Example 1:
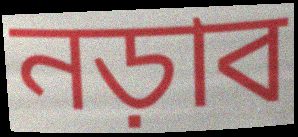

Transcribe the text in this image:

নড়াব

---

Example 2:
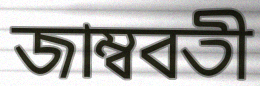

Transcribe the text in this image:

জাম্ববতী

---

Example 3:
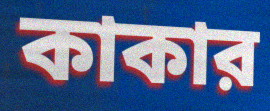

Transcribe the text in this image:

কাকার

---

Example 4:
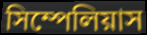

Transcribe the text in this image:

সিম্পেলিয়াস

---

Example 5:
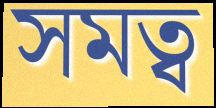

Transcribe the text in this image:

সমত্ব